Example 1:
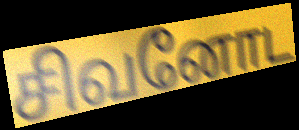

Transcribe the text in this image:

சிவனோட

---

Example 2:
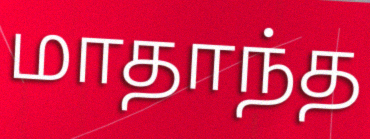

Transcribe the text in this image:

மாதாந்த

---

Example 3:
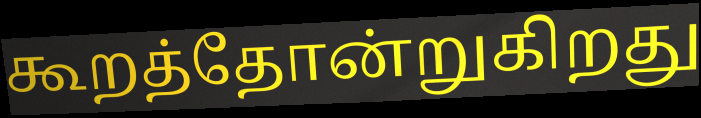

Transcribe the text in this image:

கூறத்தோன்றுகிறது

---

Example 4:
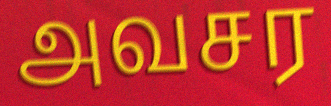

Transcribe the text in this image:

அவசர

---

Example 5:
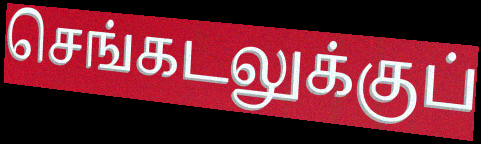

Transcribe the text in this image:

செங்கடலுக்குப்